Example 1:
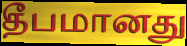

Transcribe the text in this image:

தீபமானது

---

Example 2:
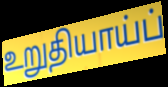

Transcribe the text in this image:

உறுதியாய்ப்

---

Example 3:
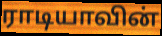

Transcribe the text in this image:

ராடியாவின்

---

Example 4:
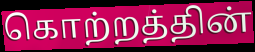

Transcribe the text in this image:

கொற்றத்தின்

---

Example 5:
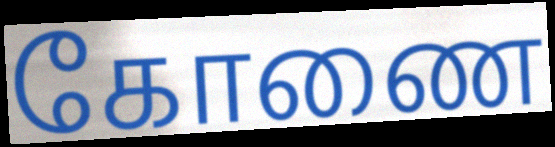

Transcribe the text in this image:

கோணை